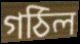
গঠিল